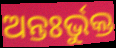
ଅନ୍ତଃର୍ଭୁକ୍ତ